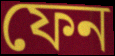
ফেন